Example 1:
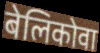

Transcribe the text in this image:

बेलिकोवा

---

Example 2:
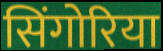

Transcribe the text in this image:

सिंगोरिया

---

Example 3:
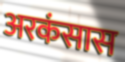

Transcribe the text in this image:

अरकंसास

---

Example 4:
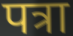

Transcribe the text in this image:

पत्रा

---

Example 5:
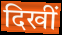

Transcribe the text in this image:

दिखीं